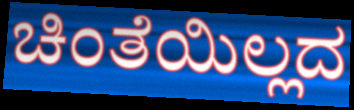
ಚಿಂತೆಯಿಲ್ಲದ